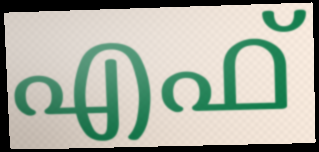
എഫ്